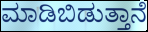
ಮಾಡಿಬಿಡುತ್ತಾನೆ